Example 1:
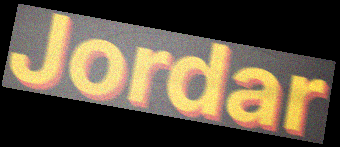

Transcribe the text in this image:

Jordar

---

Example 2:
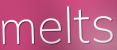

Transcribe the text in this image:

melts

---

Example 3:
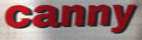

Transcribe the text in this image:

canny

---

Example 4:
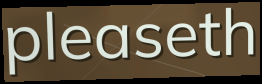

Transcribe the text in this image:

pleaseth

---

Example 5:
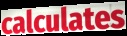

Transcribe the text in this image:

calculates